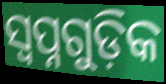
ସ୍ୱପ୍ନଗୁଡ଼ିକ